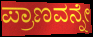
ಪ್ರಾಣವನ್ನೇ